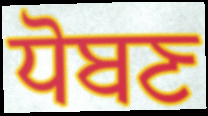
ਧੋਬਣ